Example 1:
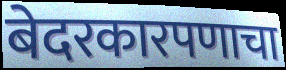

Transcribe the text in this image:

बेदरकारपणाचा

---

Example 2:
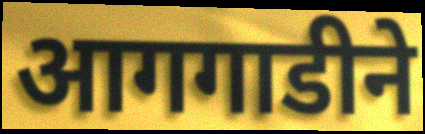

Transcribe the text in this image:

आगगाडीने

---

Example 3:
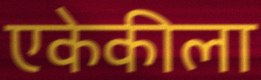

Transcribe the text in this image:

एकेकीला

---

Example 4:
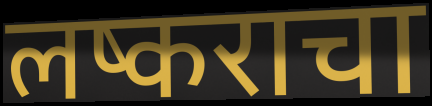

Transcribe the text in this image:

लष्कराचा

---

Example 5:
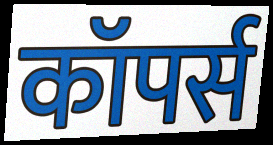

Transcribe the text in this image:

कॉपर्स